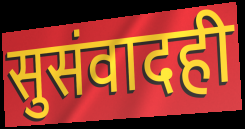
सुसंवादही